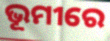
ଭୂମୀରେ